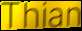
Thian